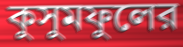
কুসুমফুলের